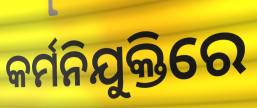
କର୍ମନିଯୁକ୍ତିରେ